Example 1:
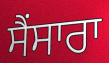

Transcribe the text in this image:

ਸੈਂਸਾਰਾ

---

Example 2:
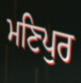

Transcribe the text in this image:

ਮਣਿਪੁਰ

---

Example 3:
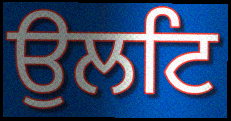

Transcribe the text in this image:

ਉਲਟਿ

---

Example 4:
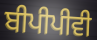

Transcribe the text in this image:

ਬੀਪੀਪੀਵੀ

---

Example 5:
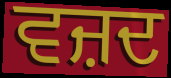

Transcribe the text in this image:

ਵਜ਼ਦ